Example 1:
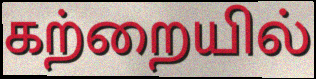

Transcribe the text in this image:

கற்றையில்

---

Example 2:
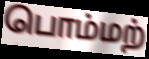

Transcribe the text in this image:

பொம்மற்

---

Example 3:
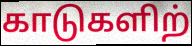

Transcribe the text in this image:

காடுகளிற்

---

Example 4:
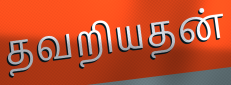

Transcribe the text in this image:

தவறியதன்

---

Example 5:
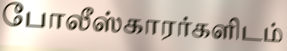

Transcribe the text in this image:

போலீஸ்காரர்களிடம்